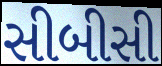
સીબીસી